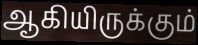
ஆகியிருக்கும்